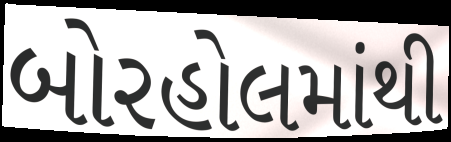
બોરહોલમાંથી